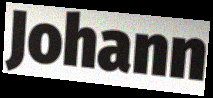
Johann